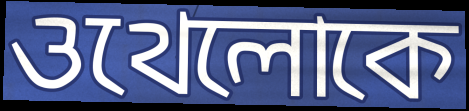
ওথেলোকে